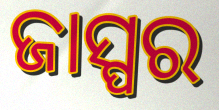
ଜାସ୍ପର